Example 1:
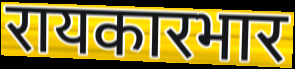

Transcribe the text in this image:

रायकारभार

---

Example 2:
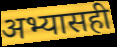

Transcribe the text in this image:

अभ्यासही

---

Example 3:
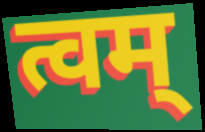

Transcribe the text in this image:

त्वम्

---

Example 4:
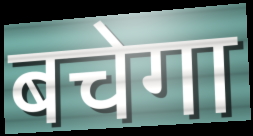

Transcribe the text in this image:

बचेगा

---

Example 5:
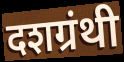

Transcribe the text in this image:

दशग्रंथी